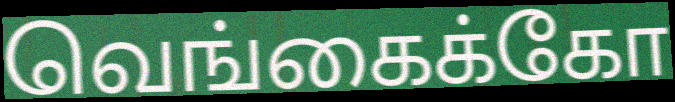
வெங்கைக்கோ